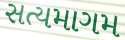
સત્યમાગમ